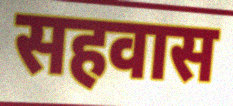
सहवास